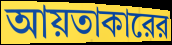
আয়তাকারের